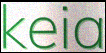
keia